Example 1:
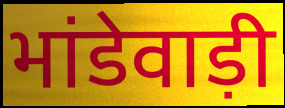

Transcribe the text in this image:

भांडेवाड़ी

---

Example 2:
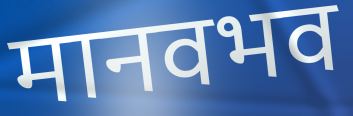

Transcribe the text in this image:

मानवभव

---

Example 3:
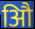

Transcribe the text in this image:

औि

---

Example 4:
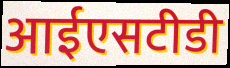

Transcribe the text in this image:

आईएसटीडी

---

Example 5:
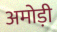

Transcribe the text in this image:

अमोड़ी